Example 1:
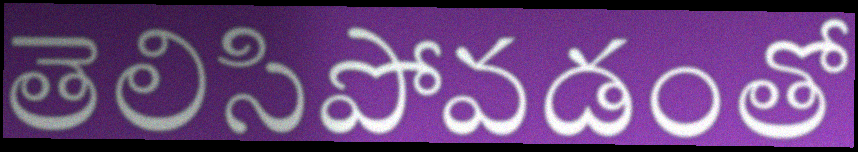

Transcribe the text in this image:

తెలిసిపోవడంతో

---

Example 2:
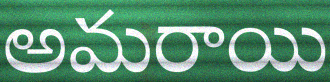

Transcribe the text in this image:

అమరాయి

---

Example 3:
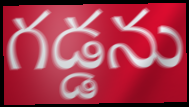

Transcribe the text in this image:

గడ్డను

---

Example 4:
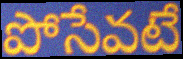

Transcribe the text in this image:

పోసేవటే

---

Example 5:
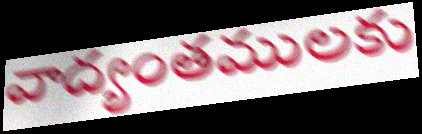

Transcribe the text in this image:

వాద్యంతములకు